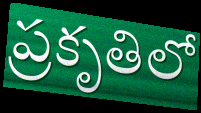
ప్రకృతిలో